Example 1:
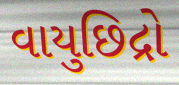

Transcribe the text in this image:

વાયુછિદ્રો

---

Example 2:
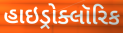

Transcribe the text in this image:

હાઇડ્રોક્લૉરિક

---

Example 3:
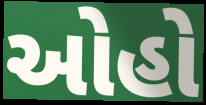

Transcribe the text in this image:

ઓહો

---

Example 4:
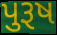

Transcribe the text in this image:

પુરૂષ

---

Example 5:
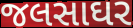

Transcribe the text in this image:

જલસાઘર